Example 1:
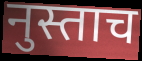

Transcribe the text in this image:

नुस्ताच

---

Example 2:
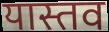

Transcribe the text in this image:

यास्तव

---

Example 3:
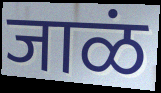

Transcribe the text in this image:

जाळं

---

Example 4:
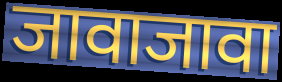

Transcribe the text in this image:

जावाजावा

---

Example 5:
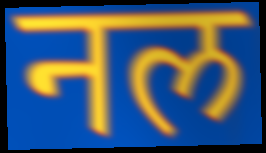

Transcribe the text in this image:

नल